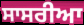
ਸਾਸਰੀਆ